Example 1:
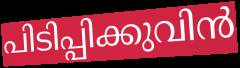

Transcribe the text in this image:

പിടിപ്പിക്കുവിൻ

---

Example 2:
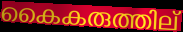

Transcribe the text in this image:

കൈകരുത്തില്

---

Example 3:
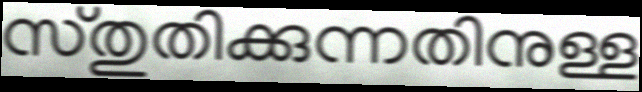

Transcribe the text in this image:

സ്തുതിക്കുന്നതിനുള്ള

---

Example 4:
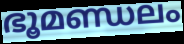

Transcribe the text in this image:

ഭൂമണ്ഡലം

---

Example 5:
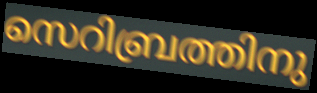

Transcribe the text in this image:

സെറിബ്രത്തിനു